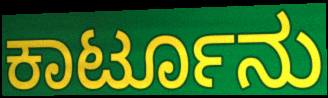
ಕಾರ್ಟೂನು